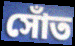
সোঁত